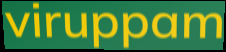
viruppam